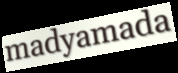
madyamada